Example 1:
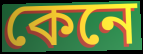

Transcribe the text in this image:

কেনে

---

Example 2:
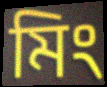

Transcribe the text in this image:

মিং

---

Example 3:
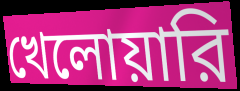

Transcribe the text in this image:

খেলোয়ারি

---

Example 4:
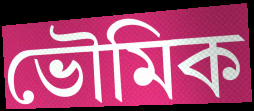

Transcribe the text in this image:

ভৌমিক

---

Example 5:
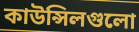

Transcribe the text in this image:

কাউন্সিলগুলো